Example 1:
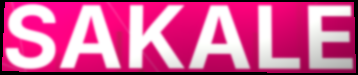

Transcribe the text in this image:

SAKALE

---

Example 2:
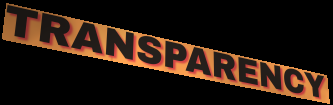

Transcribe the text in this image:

TRANSPARENCY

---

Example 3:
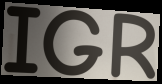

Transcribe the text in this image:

IGR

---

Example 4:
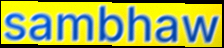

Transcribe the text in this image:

sambhaw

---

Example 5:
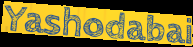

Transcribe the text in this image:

Yashodabai